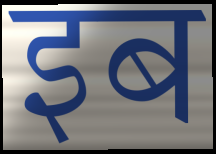
इब